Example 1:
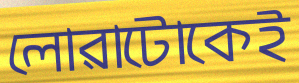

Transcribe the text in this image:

লোৱাটোকেই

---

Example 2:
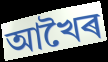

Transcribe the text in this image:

আখৈৰ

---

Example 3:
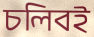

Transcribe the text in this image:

চলিবই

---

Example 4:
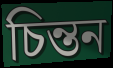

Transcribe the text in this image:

চিন্তন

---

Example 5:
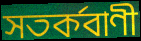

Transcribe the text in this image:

সতৰ্কবাণী